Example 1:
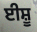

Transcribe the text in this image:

ਈਸ਼ੂ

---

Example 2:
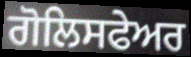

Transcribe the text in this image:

ਗੋਲਿਸਫੇਅਰ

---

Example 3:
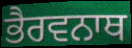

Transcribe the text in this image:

ਭੈਰਵਨਾਥ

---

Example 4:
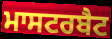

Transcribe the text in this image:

ਮਾਸਟਰਬੈਟ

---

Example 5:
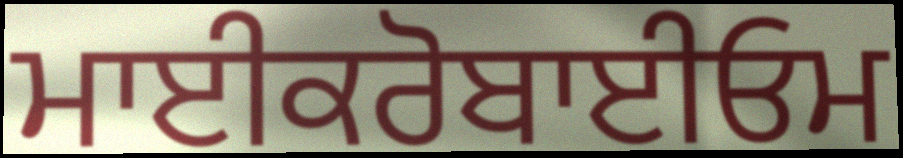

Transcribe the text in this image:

ਮਾਈਕਰੋਬਾਈਓਮ